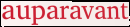
auparavant